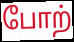
போற்